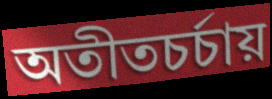
অতীতচর্চায়